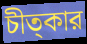
চীত্কার